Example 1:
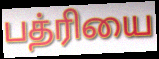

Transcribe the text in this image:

பத்ரியை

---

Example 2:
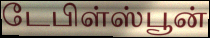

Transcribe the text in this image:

டேபிள்ஸ்பூன்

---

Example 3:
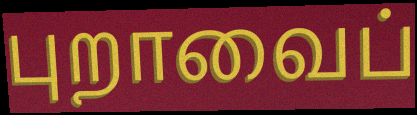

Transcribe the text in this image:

புறாவைப்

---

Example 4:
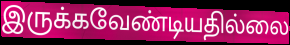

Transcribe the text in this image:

இருக்கவேண்டியதில்லை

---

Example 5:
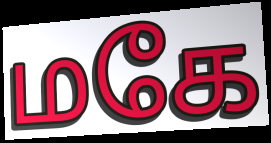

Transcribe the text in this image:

மகே